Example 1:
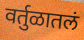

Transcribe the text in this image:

वर्तुळातलं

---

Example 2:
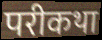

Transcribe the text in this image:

परीकथा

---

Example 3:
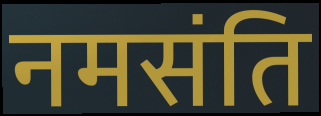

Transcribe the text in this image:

नमसंति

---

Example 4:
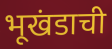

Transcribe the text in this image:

भूखंडाची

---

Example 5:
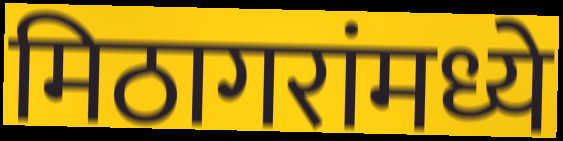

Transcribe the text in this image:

मिठागरांमध्ये